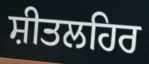
ਸ਼ੀਤਲਹਿਰ